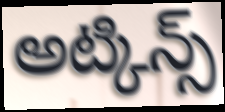
అట్కిన్స్